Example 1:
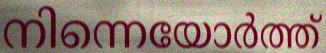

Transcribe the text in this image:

നിന്നെയോർത്ത്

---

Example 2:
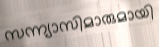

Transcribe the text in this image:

സന്ന്യാസിമാരുമായി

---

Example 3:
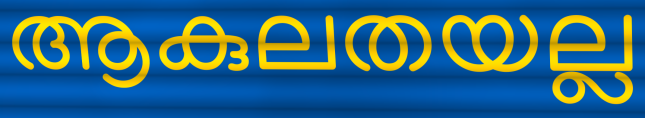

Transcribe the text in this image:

ആകുലതയല്ല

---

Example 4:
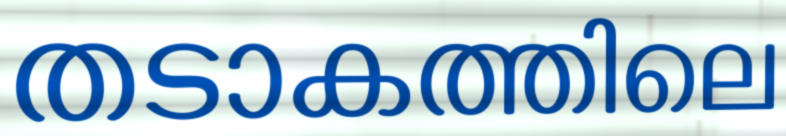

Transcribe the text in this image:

തടാകത്തിലെ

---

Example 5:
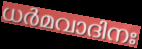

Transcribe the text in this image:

ധർമവാദിനഃ